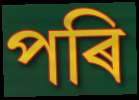
পৰি